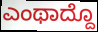
ಎಂಥಾದ್ದೊ